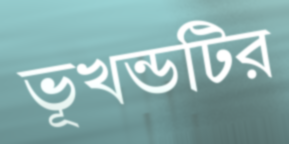
ভূখন্ডটির